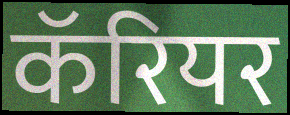
कॅरियर